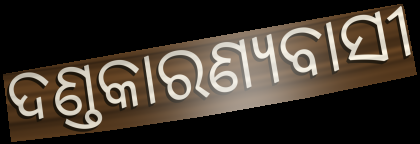
ଦଣ୍ଡକାରଣ୍ୟବାସୀ